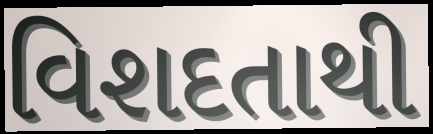
વિશદતાથી